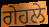
ਗੇਹਲੇ